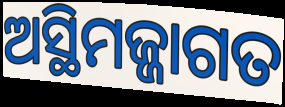
ଅସ୍ଥିମଜ୍ଜାଗତ